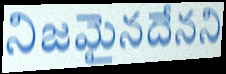
నిజమైనదేనని